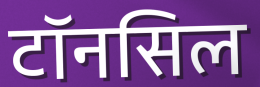
टॉनसिल